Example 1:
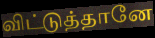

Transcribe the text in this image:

விட்டுத்தானே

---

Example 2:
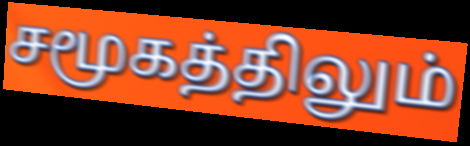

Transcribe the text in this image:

சமூகத்திலும்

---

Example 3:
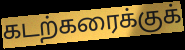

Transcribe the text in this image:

கடற்கரைக்குக்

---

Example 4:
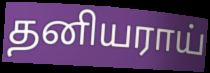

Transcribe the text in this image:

தனியராய்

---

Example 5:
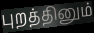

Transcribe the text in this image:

புறத்தினும்